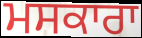
ਮਸਕਾਰਾ